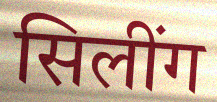
सिलींग